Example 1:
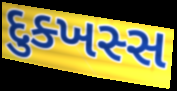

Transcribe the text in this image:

દુક્ખસ્સ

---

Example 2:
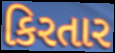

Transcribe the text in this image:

કિરતાર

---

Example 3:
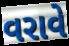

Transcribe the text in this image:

વરાવે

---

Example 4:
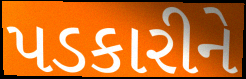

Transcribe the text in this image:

પડકારીને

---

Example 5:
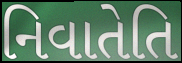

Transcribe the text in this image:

નિવાતેતિ